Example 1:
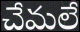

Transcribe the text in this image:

చేమలే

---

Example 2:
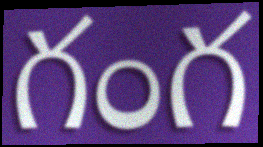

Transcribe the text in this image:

గంగ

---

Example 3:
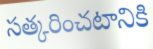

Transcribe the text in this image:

సత్కరించటానికి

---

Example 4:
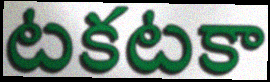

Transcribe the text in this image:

టకటకా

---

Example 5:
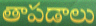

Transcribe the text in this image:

తాపడాలు